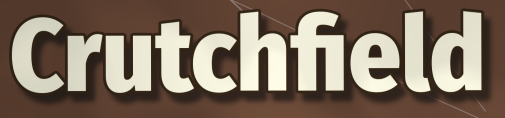
Crutchfield